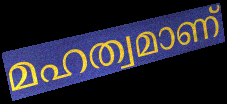
മഹത്വമാണ്